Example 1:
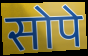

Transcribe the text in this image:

सोपे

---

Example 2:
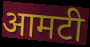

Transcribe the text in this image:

आमटी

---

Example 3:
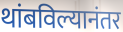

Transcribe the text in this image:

थांबविल्यानंतर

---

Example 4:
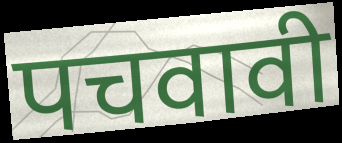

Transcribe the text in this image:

पचवावी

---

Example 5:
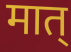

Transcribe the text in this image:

मात्